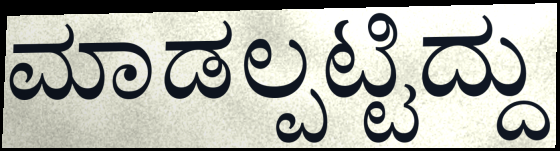
ಮಾಡಲ್ಪಟ್ಟಿದ್ದು